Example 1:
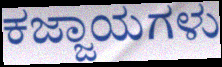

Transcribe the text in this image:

ಕಜ್ಜಾಯಗಳು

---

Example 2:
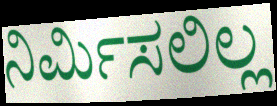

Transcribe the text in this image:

ನಿರ್ಮಿಸಲಿಲ್ಲ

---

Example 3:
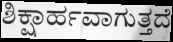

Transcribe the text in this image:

ಶಿಕ್ಷಾರ್ಹವಾಗುತ್ತದೆ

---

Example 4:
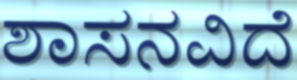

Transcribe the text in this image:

ಶಾಸನವಿದೆ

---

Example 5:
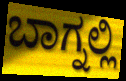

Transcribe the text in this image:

ಬಾಗ್ನಲ್ಲಿ